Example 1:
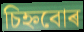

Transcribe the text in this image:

চিহ্নবোৰ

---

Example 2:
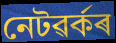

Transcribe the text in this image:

নেটৱৰ্কৰ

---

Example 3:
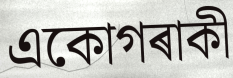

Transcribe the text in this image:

একোগৰাকী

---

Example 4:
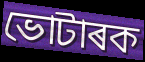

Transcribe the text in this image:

ভোটাৰক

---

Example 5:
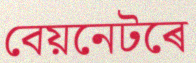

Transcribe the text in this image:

বেয়নেটৰে